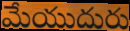
మేయుదురు